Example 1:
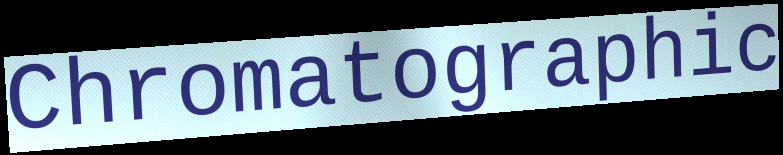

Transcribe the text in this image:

Chromatographic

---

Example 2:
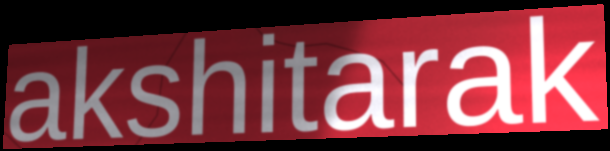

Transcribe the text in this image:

akshitarak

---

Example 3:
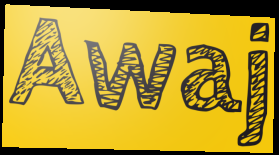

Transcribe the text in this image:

Awaj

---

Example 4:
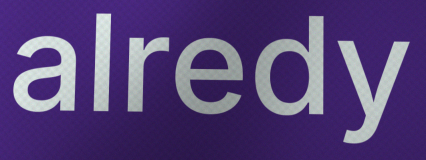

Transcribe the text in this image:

alredy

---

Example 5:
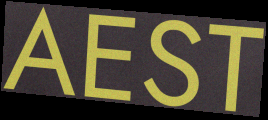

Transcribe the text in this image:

AEST